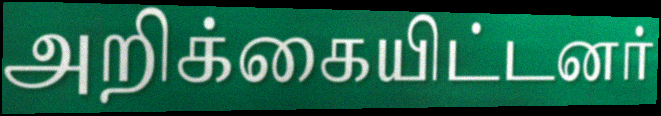
அறிக்கையிட்டனர்